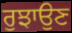
ਰੁਝਾਉਣ